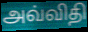
அவ்விதி